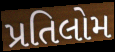
પ્રતિલોમ